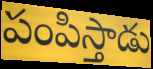
పంపిస్తాడు